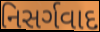
નિસર્ગવાદ